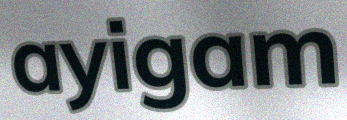
ayigam